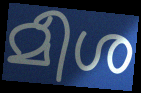
മീശ